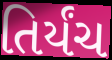
તિર્યંચ